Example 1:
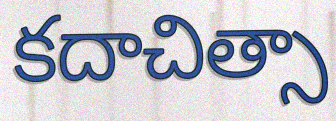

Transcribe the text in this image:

కదాచిత్సా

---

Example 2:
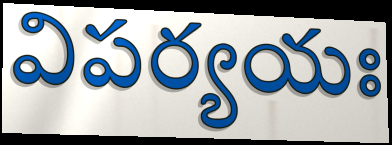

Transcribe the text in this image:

విపర్యయః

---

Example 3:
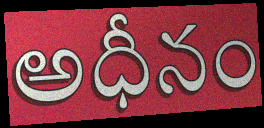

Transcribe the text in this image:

అధీనం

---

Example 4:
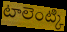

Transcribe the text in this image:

టాలెంట్కి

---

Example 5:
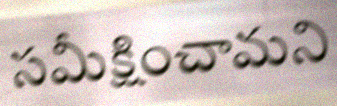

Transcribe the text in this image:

సమీక్షించామని